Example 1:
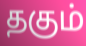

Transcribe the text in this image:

தகும்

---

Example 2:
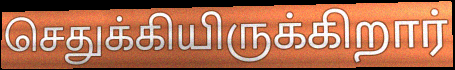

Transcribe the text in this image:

செதுக்கியிருக்கிறார்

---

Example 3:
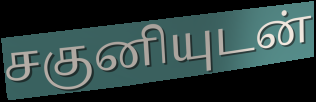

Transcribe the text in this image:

சகுனியுடன்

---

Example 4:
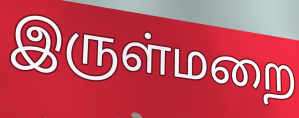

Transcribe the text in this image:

இருள்மறை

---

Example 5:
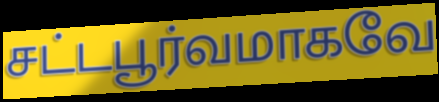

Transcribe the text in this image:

சட்டபூர்வமாகவே